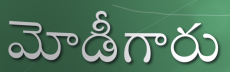
మోడీగారు